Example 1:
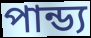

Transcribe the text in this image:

পান্ড্য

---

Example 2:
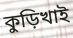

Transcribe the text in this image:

কুড়িখাই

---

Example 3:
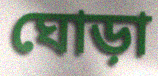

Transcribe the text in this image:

ঘোড়া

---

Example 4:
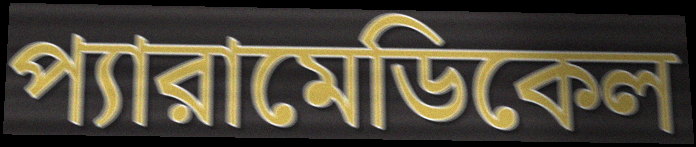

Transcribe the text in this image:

প্যারামেডিকেল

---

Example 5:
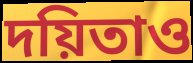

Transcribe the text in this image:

দয়িতাও